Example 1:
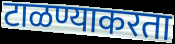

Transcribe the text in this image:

टाळण्याकरता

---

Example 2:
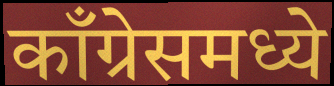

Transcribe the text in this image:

काँग्रेसमध्ये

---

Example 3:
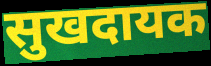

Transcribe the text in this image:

सुखदायक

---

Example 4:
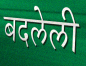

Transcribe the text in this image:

बदलेली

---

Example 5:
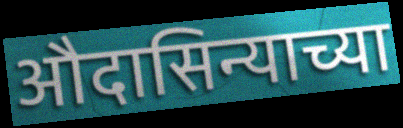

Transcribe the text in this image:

औदासिन्याच्या